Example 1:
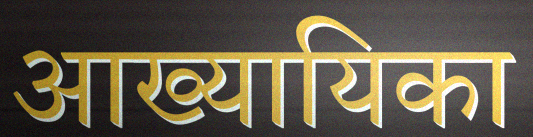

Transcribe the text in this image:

आख्यायिका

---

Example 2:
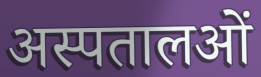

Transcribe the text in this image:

अस्पतालओं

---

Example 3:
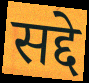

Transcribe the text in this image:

सद्दे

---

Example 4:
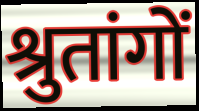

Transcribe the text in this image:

श्रुतांगों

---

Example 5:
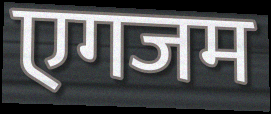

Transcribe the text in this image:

एगजम